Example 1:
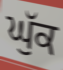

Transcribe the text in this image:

ਘੁੱਕ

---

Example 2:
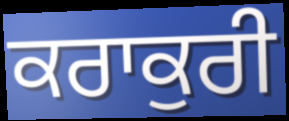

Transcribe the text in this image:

ਕਰਾਕੁਰੀ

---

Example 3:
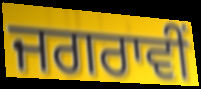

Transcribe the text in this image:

ਜਗਰਾਵੀਂ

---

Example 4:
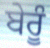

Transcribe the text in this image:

ਬੇਰੂੰ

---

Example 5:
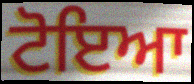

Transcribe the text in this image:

ਟੋਇਆ